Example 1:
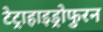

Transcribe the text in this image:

टेट्राहाइड्रोफुरन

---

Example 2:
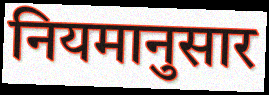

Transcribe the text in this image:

नियमानुसार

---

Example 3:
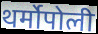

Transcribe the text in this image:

थर्मोपोली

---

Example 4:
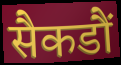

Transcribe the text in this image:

सैकडौं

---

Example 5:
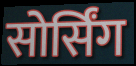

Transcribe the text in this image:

सोर्सिंग